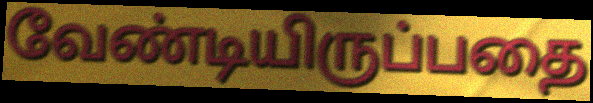
வேண்டியிருப்பதை